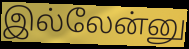
இல்லேன்னு